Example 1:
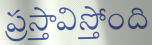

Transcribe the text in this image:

ప్రస్తావిస్తోంది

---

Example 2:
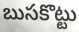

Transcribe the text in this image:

బుసకొట్టు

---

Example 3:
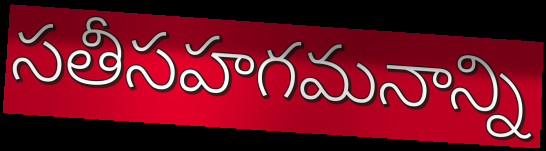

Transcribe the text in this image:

సతీసహగమనాన్ని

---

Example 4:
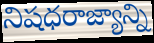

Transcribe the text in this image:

నిషధరాజ్యాన్ని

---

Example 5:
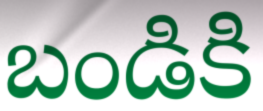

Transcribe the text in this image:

బండికి